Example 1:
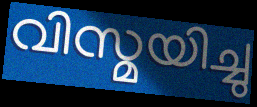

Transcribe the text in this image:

വിസ്മയിച്ചു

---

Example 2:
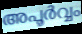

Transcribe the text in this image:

അപൂർവ്വം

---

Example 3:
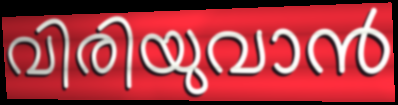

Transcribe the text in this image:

വിരിയുവാൻ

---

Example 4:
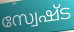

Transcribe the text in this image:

സ്വേഷ്ട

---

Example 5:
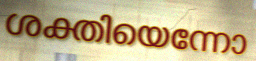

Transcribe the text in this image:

ശക്തിയെന്നോ